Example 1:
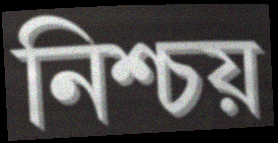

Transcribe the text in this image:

নিশ্চয়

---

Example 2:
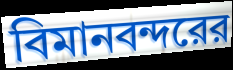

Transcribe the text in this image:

বিমানবন্দরের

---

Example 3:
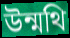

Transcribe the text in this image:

উন্মথি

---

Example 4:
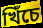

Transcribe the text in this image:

খিঁচে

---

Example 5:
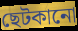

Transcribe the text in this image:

ছেটকানো